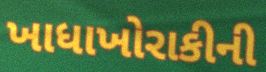
ખાધાખોરાકીની